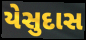
યેસુદાસ